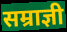
सम्राज्ञी